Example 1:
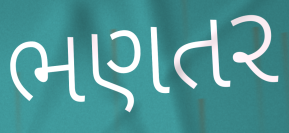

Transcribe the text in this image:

ભણતર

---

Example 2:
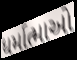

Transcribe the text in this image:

ધર્માત્માઓ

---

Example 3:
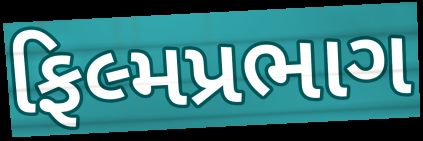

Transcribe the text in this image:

ફિલ્મપ્રભાગ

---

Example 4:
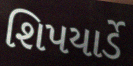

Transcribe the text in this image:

શિપયાર્ડે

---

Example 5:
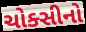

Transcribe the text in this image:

ચોક્સીનો